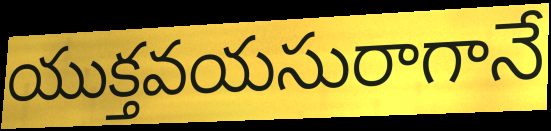
యుక్తవయసురాగానే